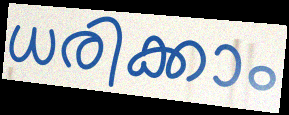
ധരിക്കാം